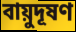
বায়ুদূষণ